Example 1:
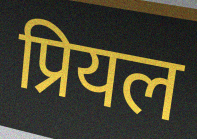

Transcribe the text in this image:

प्रियल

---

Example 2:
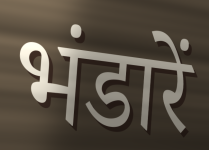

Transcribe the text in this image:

भंडारें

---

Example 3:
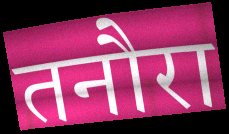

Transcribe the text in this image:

तनौरा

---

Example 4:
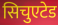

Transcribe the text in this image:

सिचुएटेड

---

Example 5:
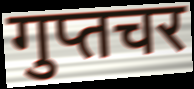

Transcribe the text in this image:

गुप्तचर